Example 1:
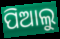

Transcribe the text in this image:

ପିଆଲୁ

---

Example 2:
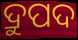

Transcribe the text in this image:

ଦ୍ରୁପଦ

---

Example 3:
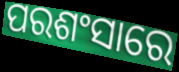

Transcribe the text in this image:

ପରଶଂସାରେ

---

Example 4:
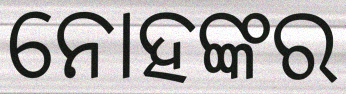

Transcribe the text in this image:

ନୋହଙ୍କର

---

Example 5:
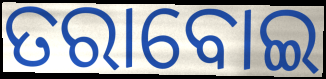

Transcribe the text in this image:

ତରାବୋଇ